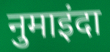
नुमाइंदा